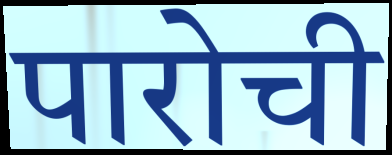
पारोची